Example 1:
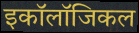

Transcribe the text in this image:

इकॉलॉजिकल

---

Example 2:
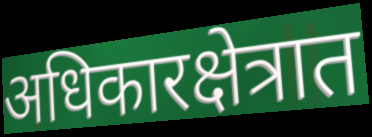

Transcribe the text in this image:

अधिकारक्षेत्रात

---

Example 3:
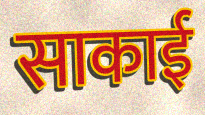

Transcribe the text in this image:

साकाई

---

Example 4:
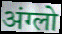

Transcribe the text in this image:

अंग्लो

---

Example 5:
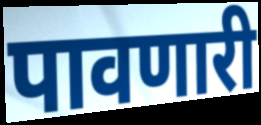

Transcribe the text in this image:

पावणारी